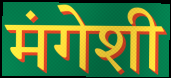
मंगेशी